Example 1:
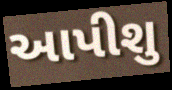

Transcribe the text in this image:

આપીશુ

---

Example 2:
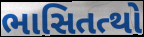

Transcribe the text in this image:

ભાસિતત્થો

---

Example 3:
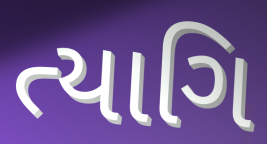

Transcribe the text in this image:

ત્યાગિ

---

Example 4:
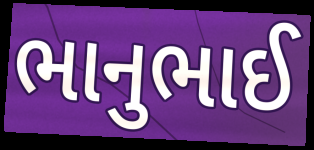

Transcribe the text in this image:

ભાનુભાઈ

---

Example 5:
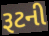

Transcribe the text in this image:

રૂટની